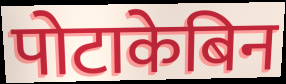
पोटाकेबिन